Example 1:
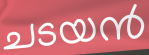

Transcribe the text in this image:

ചടയൻ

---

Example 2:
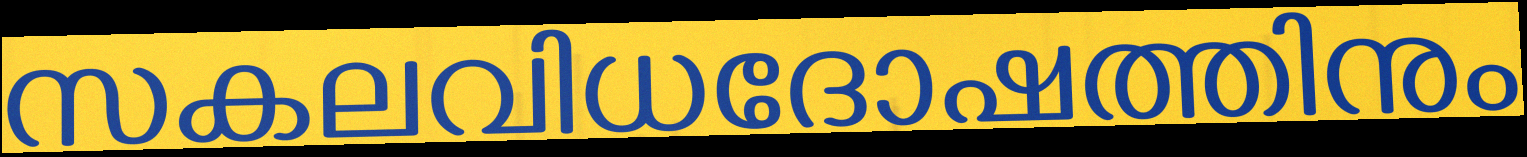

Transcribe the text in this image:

സകലവിധദോഷത്തിനും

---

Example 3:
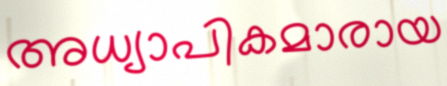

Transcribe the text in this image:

അധ്യാപികമാരായ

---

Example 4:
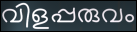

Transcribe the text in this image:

വിളപ്പരുവം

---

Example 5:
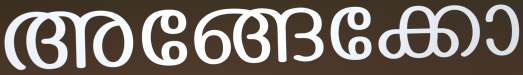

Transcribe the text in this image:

അങ്ങേക്കോ